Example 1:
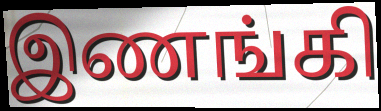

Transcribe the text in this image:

இணங்கி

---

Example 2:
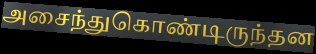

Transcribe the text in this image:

அசைந்துகொண்டிருந்தன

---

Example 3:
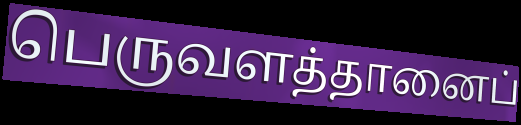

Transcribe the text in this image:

பெருவளத்தானைப்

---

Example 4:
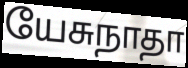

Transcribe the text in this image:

யேசுநாதா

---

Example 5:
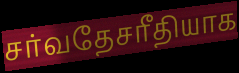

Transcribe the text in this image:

சர்வதேசரீதியாக